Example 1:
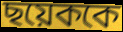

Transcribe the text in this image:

ছয়েককে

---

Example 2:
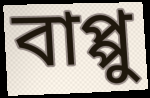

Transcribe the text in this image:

বাপ্পু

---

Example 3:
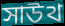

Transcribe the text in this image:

সাউথ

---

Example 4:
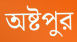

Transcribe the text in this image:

অষ্টপুর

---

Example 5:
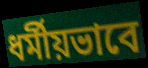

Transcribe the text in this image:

ধর্মীয়ভাবে